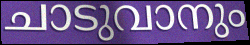
ചാടുവാനും